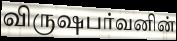
விருஷபர்வனின்